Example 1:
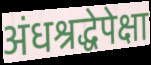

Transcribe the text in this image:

अंधश्रद्धेपेक्षा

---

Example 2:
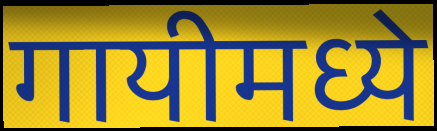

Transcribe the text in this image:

गायीमध्ये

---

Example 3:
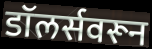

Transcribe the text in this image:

डॉलर्सवरून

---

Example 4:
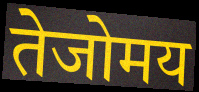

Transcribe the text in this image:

तेजोमय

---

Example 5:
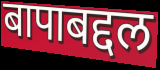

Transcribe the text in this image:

बापाबद्दल